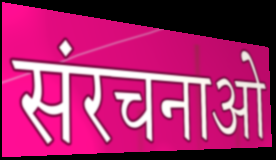
संरचनाओ